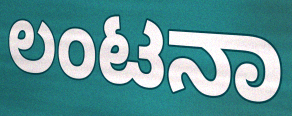
ಲಂಟನಾ